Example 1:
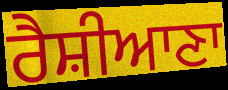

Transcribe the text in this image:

ਰੈਸ਼ੀਆਣਾ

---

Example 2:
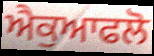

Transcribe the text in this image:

ਐਕੁਆਫਲੋ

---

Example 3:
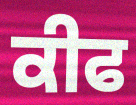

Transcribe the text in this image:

ਕੀਫ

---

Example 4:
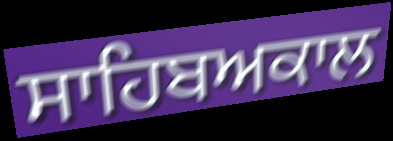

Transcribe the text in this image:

ਸਾਹਿਬਅਕਾਲ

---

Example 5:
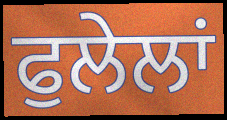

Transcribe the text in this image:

ਫੁਲੇਲਾਂ